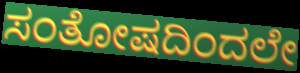
ಸಂತೋಷದಿಂದಲೇ